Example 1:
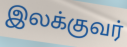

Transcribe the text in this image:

இலக்குவர்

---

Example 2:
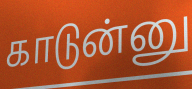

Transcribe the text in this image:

காடுன்னு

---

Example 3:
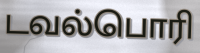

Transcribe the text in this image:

டவல்பொரி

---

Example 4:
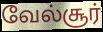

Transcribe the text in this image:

வேல்சூர்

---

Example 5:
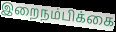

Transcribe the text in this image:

இறைநம்பிக்கை